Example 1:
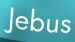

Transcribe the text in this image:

Jebus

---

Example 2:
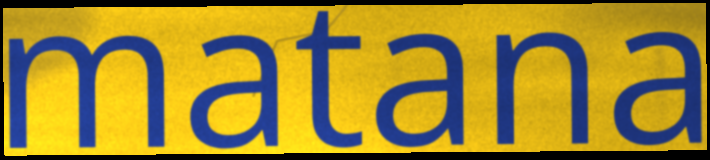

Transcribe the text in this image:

matana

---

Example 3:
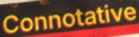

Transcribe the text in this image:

Connotative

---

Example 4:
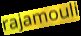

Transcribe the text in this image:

rajamouli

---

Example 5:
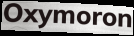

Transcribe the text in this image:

Oxymoron